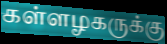
கள்ளழகருக்கு